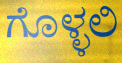
ಗೊಳ್ಳಲಿ